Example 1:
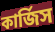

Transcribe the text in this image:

কার্জিস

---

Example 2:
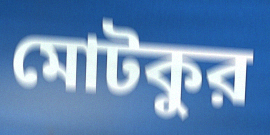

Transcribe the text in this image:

মোটকুর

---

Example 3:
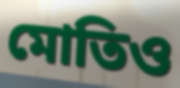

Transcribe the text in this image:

মোতিও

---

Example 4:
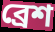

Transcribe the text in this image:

ব্রেশ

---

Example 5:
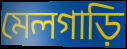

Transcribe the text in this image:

মেলগাড়ি